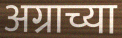
अग्राच्या